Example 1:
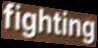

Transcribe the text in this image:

fighting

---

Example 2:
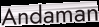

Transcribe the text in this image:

Andaman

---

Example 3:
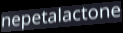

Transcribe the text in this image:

nepetalactone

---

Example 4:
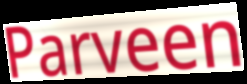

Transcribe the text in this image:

Parveen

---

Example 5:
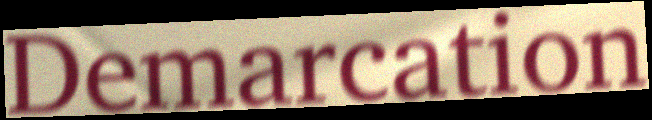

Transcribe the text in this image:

Demarcation